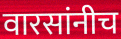
वारसांनीच